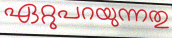
ഏറ്റുപറയുന്നതു